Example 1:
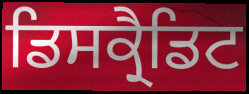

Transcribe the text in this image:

ਡਿਸਕ੍ਰੈਡਿਟ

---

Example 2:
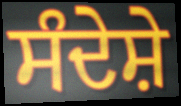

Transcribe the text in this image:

ਸੰਦੇਸ਼ੇ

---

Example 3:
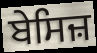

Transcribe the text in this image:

ਬੇਸਿਜ਼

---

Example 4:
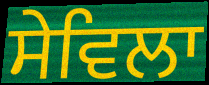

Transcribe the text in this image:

ਸੇਵਿਲਾ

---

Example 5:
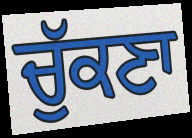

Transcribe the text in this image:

ਚੁੱਕਣਾ